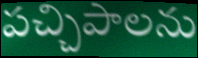
పచ్చిపాలను